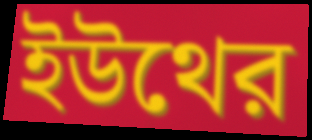
ইউথের